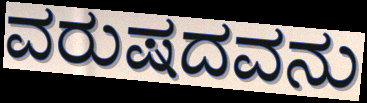
ವರುಷದವನು